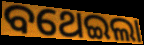
ବଥେଇଲା